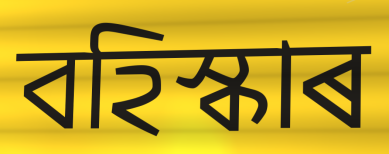
বহিস্কাৰ